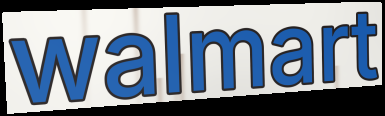
walmart